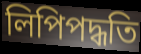
লিপিপদ্ধতি